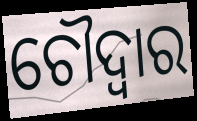
ଚୌଦ୍ଵାର